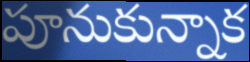
పూనుకున్నాక